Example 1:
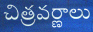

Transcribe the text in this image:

చిత్రవర్ణాలు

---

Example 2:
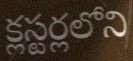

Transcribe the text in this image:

క్లస్టర్లలోని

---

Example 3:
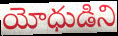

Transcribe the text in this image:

యోధుడిని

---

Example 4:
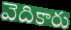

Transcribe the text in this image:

వెదికారు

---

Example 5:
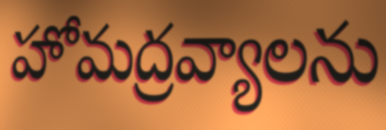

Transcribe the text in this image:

హోమద్రవ్యాలను